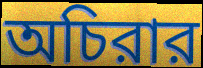
অচিরার